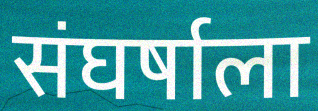
संघर्षाला